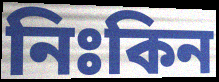
নিঃকিন